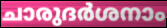
ചാരുദർശനാം